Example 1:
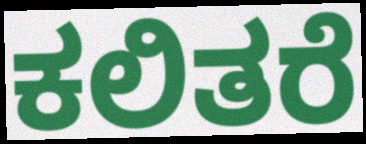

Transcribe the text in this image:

ಕಲಿತರೆ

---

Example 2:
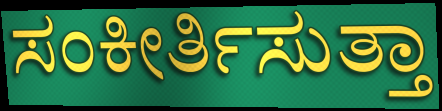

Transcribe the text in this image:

ಸಂಕೀರ್ತಿಸುತ್ತಾ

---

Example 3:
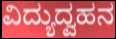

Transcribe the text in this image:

ವಿದ್ಯುದ್ವಹನ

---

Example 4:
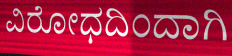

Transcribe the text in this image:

ವಿರೋಧದಿಂದಾಗಿ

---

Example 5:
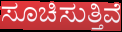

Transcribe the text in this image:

ಸೂಚಿಸುತ್ತಿವೆ